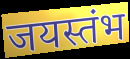
जयस्तंभ